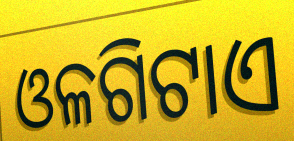
ଓଳଗିଟାଏ